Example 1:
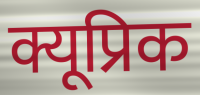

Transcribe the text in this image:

क्यूप्रिक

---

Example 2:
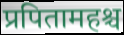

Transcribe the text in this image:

प्रपितामहश्च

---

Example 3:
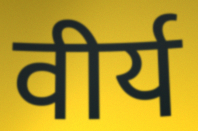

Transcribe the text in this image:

वीर्य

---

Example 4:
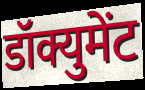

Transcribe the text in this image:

डॉक्युमेंट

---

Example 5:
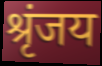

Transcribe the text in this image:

श्रृंजय